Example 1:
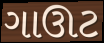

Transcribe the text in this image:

ગાઊટ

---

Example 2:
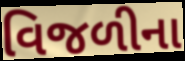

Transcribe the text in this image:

વિજળીના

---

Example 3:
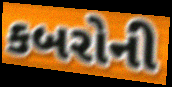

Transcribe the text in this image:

કબરોની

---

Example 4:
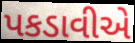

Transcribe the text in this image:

પકડાવીએ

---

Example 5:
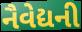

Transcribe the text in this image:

નૈવેદ્યની